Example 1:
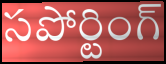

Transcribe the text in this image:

సపోర్టింగ్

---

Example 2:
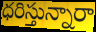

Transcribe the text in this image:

ధరిస్తున్నారా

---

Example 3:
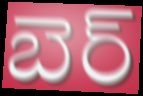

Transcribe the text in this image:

బెర్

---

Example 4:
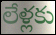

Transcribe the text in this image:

లేళ్లకు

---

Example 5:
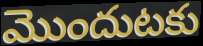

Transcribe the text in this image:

మొందుటకు